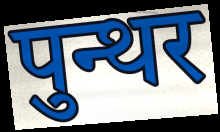
पुन्थर